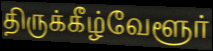
திருக்கீழ்வேளூர்